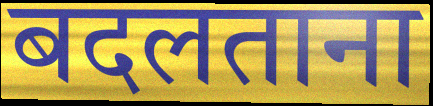
बदलताना